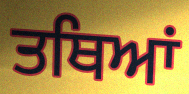
ਤਥਿਆਂ